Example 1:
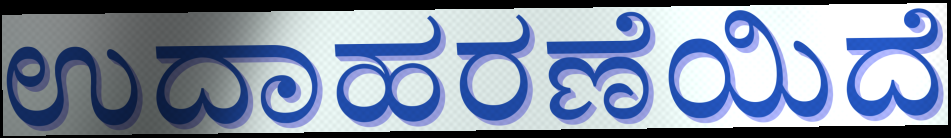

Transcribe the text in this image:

ಉದಾಹರಣೆಯಿದೆ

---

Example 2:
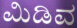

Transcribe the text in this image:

ಮಿಡಿವ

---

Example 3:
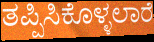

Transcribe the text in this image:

ತಪ್ಪಿಸಿಕೊಳ್ಳಲಾರೆ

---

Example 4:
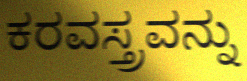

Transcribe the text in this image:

ಕರವಸ್ತ್ರವನ್ನು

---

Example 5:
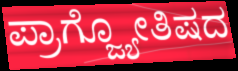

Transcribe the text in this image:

ಪ್ರಾಗ್ಜ್ಯೋತಿಷದ